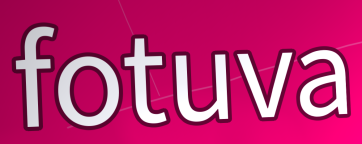
fotuva